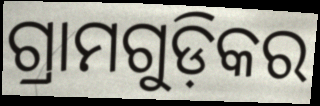
ଗ୍ରାମଗୁଡ଼ିକର